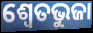
ଶ୍ଵେତଭୁଜା